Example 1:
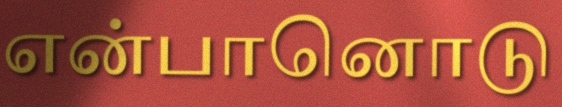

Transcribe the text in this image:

என்பானொடு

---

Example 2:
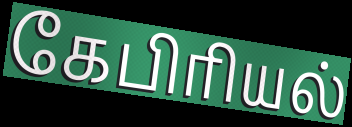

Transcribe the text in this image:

கேபிரியல்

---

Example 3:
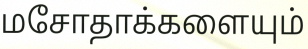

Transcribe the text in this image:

மசோதாக்களையும்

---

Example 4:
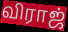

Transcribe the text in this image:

விராஜ்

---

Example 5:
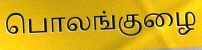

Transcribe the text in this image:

பொலங்குழை